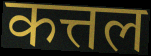
कत्तल